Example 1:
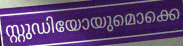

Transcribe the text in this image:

സ്റ്റുഡിയോയുമൊക്കെ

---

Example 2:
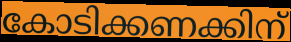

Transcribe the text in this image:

കോടിക്കണക്കിന്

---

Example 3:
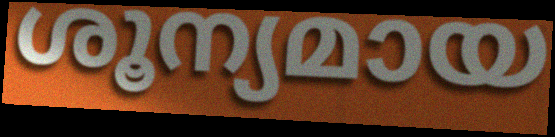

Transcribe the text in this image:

ശൂന്യമായ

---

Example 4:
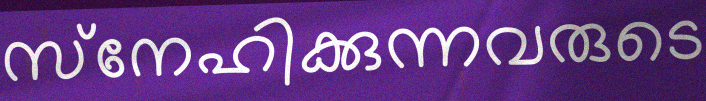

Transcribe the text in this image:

സ്‌നേഹിക്കുന്നവരുടെ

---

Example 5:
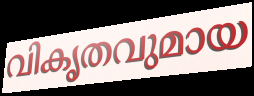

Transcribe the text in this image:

വികൃതവുമായ